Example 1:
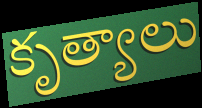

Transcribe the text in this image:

కృత్యాలు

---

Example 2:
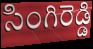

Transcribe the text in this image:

సింగిరెడ్డి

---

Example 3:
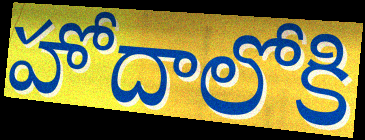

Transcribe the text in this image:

హోదాలోకి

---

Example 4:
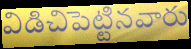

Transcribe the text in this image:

విడిచిపెట్టినవారు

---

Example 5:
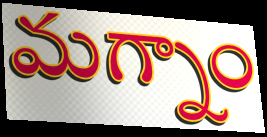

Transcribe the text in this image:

మగ్నాం